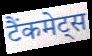
टैंकमेट्स